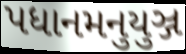
પધાનમનુયુઞ્જ